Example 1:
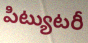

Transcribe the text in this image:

పిట్యుటరీ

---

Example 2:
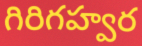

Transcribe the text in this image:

గిరిగహ్వర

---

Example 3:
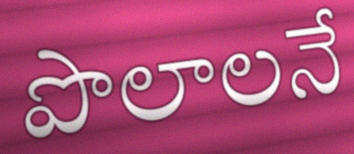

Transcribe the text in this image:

పొలాలనే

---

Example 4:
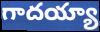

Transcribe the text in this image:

గాదయ్యా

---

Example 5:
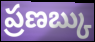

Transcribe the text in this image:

ప్రణబ్కు